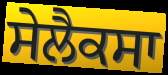
ਸੇਲੈਕਸਾ